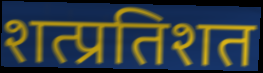
शत्प्रतिशत